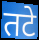
तटे